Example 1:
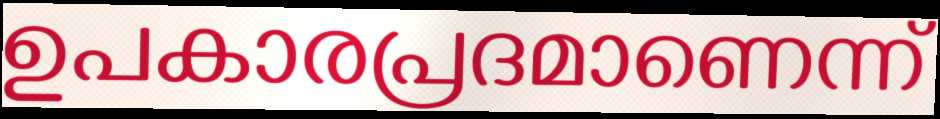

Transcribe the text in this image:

ഉപകാരപ്രദമാണെന്ന്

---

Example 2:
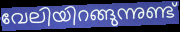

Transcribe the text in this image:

വേലിയിറങ്ങുന്നുണ്ട്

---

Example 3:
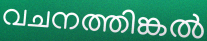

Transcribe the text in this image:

വചനത്തിങ്കൽ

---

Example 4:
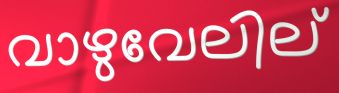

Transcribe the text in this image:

വാഴുവേലില്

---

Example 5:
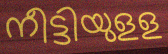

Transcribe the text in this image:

നീട്ടിയുളള